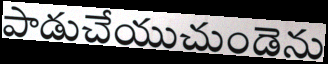
పాడుచేయుచుండెను